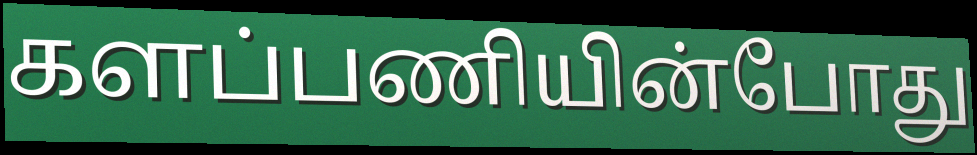
களப்பணியின்போது